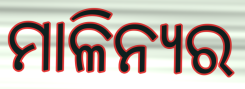
ମାଳିନ୍ୟର